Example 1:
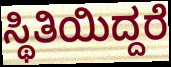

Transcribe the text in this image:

ಸ್ಥಿತಿಯಿದ್ದರೆ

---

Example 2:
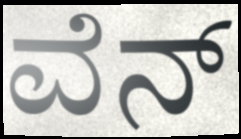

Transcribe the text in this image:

ವೆನ್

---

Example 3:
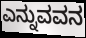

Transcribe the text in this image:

ಎನ್ನುವವನ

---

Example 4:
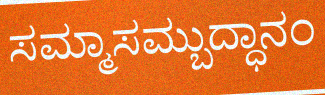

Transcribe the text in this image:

ಸಮ್ಮಾಸಮ್ಬುದ್ಧಾನಂ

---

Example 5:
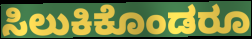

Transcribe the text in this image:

ಸಿಲುಕಿಕೊಂಡರೂ